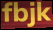
fbjk